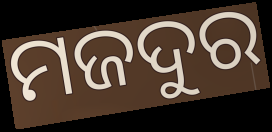
ମଜଦୁର